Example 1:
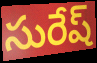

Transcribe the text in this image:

సురేష్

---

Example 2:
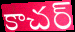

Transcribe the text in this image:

కాచర్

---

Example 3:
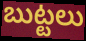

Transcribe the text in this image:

బుట్టలు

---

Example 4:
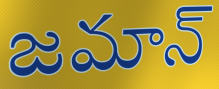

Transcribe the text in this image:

జమాన్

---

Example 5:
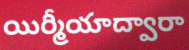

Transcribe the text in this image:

యిర్మీయాద్వారా